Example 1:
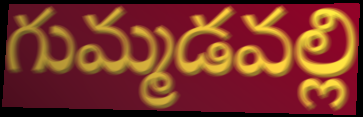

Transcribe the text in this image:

గుమ్మడవల్లి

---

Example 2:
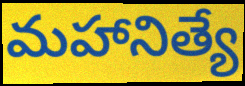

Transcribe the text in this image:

మహానిత్యే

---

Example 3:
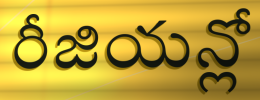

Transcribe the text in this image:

రీజియన్లో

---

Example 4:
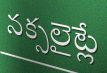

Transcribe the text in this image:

నక్సలైట్లే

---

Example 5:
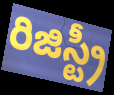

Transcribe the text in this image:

రిజిస్ట్రీ